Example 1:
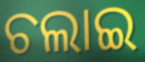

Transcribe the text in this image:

ଚଲାଇ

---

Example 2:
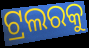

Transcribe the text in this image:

ଟ୍ରଲରକୁ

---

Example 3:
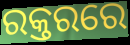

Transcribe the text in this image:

ରକ୍ତରରେ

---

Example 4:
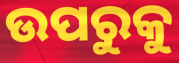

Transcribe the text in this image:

ଉପରୁକୁ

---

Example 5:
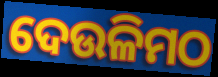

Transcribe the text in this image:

ଦେଉଳିମଠ